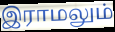
இராமலும்